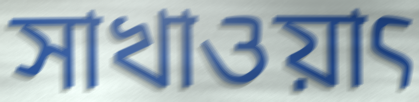
সাখাওয়াৎ